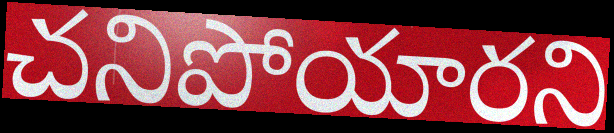
చనిపోయారని